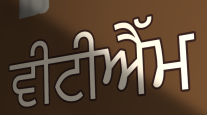
ਵੀਟੀਐੱਮ